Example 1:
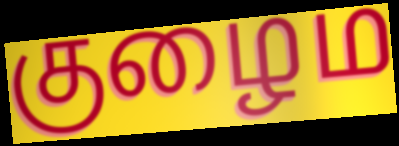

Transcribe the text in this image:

குழைம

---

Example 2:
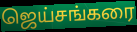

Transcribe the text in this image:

ஜெய்சங்கரை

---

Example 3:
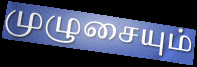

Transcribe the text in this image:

முழுசையும்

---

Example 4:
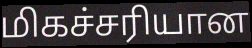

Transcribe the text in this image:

மிகச்சரியான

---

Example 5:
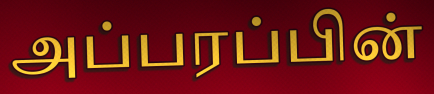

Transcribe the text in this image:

அப்பரப்பின்